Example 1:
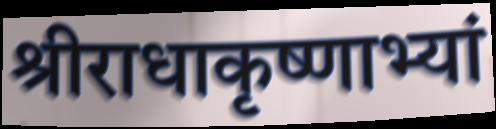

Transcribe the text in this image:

श्रीराधाकृष्णाभ्यां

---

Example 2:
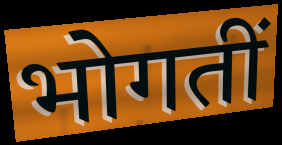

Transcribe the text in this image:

भोगतीं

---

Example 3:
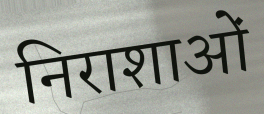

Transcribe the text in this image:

निराशाओं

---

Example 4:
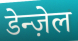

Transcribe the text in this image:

डेन्ज़ेल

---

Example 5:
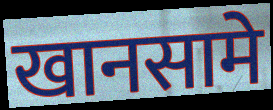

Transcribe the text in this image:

खानसामे